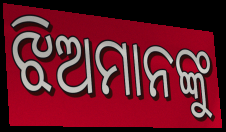
ଝିଅମାନଙ୍କୁ